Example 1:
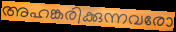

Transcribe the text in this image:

അഹങ്കരിക്കുന്നവരോ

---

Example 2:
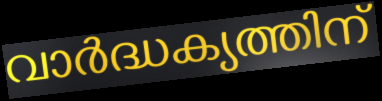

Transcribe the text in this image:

വാർദ്ധക്യത്തിന്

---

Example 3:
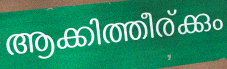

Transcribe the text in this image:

ആക്കിത്തീര്ക്കും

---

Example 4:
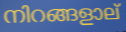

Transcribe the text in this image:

നിറങ്ങളാല്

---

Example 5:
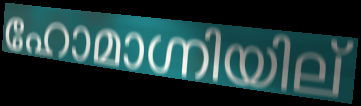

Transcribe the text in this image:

ഹോമാഗ്നിയില്